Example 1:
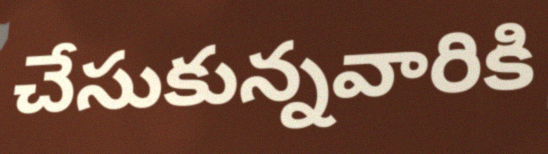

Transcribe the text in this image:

చేసుకున్నవారికి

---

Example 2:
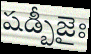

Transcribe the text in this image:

షడ్బీజైః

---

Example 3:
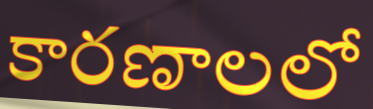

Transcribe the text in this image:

కారణాలలో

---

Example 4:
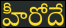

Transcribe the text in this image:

హీరోదే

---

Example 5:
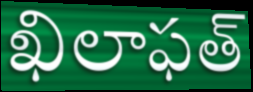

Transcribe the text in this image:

ఖిలాఫత్